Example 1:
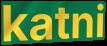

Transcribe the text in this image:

katni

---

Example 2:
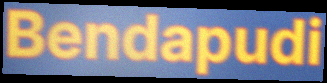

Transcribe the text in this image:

Bendapudi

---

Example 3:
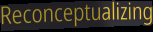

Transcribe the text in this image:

Reconceptualizing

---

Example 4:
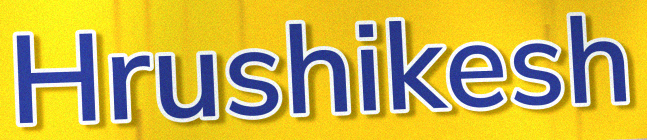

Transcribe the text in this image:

Hrushikesh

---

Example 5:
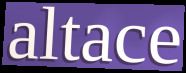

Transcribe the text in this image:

altace